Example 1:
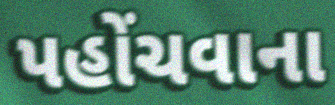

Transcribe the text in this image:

પહોંચવાના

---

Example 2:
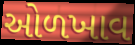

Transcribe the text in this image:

ઓળખાવ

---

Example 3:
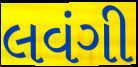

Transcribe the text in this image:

લવંગી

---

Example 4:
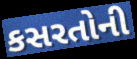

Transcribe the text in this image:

કસરતોની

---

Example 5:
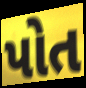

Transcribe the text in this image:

પોત